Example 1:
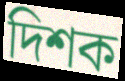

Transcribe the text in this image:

দিশক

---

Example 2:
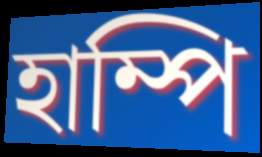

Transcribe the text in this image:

হাম্পি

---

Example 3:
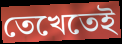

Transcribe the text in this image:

তেখেতেই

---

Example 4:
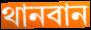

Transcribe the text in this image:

থানবান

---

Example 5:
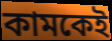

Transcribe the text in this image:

কামকেই